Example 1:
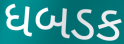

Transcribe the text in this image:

ધબડક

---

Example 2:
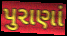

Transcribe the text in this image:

પુરાણાં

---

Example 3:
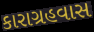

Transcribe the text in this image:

કારાગ્રહવાસ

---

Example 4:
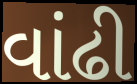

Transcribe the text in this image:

વાંઢી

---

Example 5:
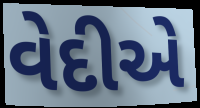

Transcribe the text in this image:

વેદીએ